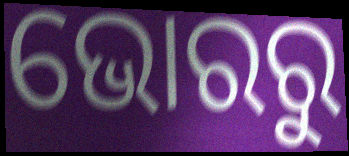
ଭୋରରୁ